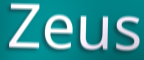
Zeus